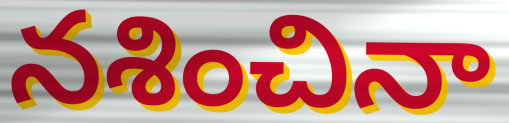
నశించినా